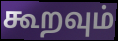
கூறவும்